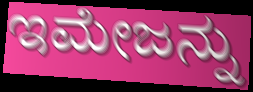
ಇಮೇಜನ್ನು